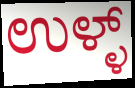
ಉಳ್ಳ್